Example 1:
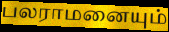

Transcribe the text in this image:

பலராமனையும்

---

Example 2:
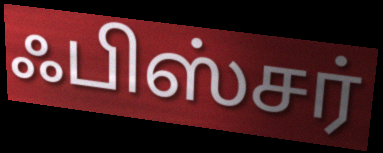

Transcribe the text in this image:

ஃபிஸ்சர்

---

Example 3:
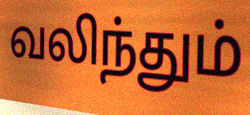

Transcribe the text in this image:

வலிந்தும்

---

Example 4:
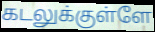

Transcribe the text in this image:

கடலுக்குள்ளே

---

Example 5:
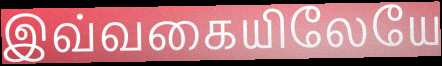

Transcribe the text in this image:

இவ்வகையிலேயே